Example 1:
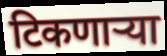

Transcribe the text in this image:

टिकणाऱ्या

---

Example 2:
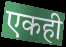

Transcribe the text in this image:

एकही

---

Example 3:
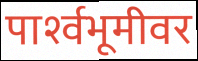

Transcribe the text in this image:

पार्श्वभूमीवर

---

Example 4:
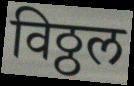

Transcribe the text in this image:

विठ्ठल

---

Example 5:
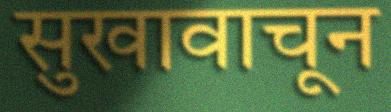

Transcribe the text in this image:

सुखावाचून